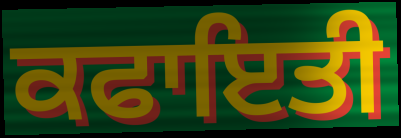
ਕਫਾਇਤੀ